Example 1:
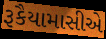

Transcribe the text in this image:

રૂકૈયામાસીએ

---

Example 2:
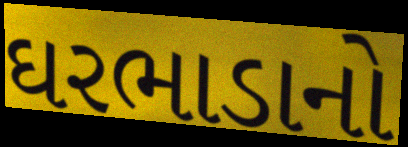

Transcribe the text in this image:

ઘરભાડાનો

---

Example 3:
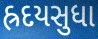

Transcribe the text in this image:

હ્રદયસુધા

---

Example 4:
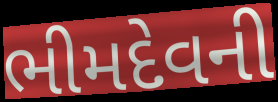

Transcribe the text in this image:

ભીમદેવની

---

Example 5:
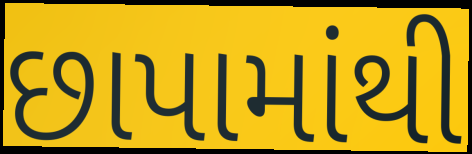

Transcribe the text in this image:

છાપામાંથી